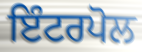
ਇੰਟਰਪੋਲ